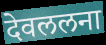
देवललना